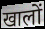
खालों